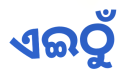
ଏଇଠୁଁ